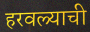
हरवल्याची